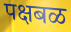
पक्षबळ